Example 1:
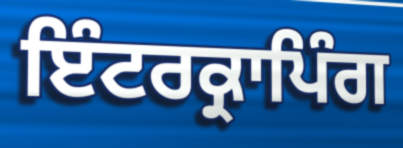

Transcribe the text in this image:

ਇੰਟਰਕ੍ਰਾਪਿੰਗ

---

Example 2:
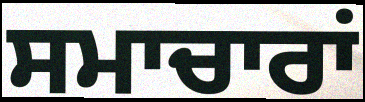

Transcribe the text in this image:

ਸਮਾਚਾਰਾਂ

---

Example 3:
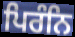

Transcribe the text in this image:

ਪਿਰੰਨਿ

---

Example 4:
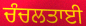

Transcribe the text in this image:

ਚੰਚਲਤਾਈ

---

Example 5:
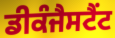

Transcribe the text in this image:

ਡੀਕੰਜੈਸਟੈਂਟ